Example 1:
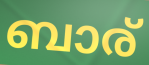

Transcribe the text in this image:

ബാര്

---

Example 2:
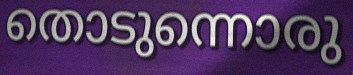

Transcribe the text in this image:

തൊടുന്നൊരു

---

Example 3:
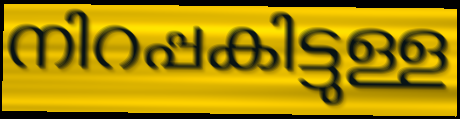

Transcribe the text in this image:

നിറപ്പകിട്ടുള്ള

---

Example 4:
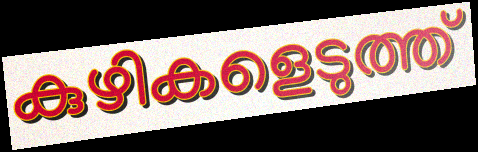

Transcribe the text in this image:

കുഴികളെടുത്ത്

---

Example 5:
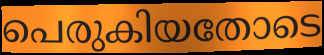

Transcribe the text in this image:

പെരുകിയതോടെ